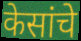
केसांचे